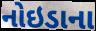
નોઇડાના